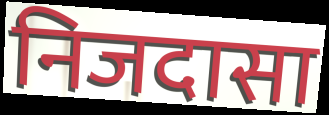
निजदासा